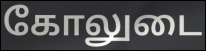
கோலுடை